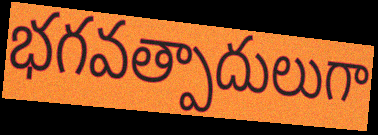
భగవత్పాదులుగా